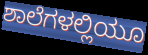
ಶಾಲೆಗಳಲ್ಲಿಯೂ